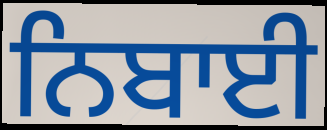
ਨਿਬਾਈ